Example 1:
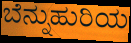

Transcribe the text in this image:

ಬೆನ್ನುಹುರಿಯ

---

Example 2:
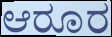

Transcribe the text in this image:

ಆರೂರ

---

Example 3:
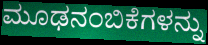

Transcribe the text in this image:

ಮೂಢನಂಬಿಕೆಗಳನ್ನು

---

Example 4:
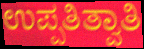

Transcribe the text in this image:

ಉಪ್ಪತಿತ್ವಾತಿ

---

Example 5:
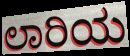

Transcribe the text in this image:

ಲಾರಿಯ